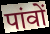
पांवों